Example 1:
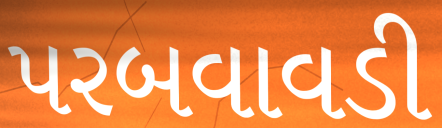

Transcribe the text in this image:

પરબવાવડી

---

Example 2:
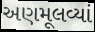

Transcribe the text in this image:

અણમૂલવ્યાં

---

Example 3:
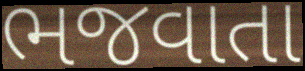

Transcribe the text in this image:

ભજવાતા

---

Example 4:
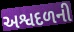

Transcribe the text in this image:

અશ્વદળની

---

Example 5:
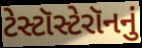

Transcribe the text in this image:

ટેસ્ટૉસ્ટેરૉનનું